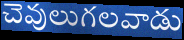
చెవులుగలవాడు